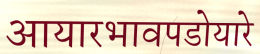
आयारभावपडोयारे